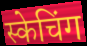
स्केचिंग